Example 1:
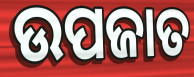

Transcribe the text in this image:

ଉପଜାତ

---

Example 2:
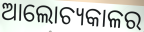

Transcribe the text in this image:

ଆଲୋଚ୍ୟକାଳର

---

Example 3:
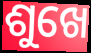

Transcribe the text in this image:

ଶୁଖେ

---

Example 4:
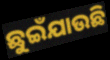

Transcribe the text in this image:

ଛୁଇଁଯାଉଛି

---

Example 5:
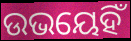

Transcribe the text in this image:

ଉଭୟେହିଁ